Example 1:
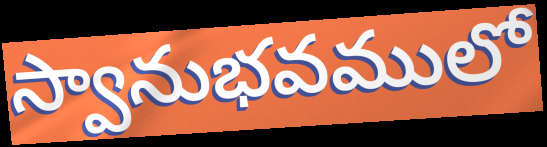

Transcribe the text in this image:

స్వానుభవములో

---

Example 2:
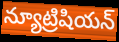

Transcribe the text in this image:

న్యూట్రిషియన్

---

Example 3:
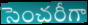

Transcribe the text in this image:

సెంచరీగా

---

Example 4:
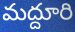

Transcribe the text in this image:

మద్దూరి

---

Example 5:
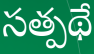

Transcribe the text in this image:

సత్పథే